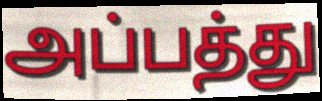
அப்பத்து